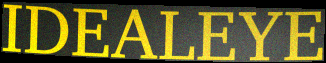
IDEALEYE